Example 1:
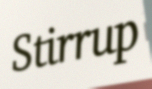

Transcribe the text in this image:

Stirrup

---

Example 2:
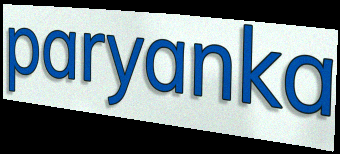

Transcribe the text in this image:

paryanka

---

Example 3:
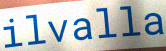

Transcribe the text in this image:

ilvalla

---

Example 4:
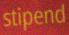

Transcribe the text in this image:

stipend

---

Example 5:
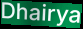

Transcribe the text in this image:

Dhairya